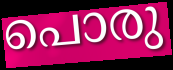
പൊരു